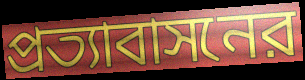
প্রত্যাবাসনের